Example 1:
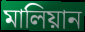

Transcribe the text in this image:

মালিয়ান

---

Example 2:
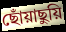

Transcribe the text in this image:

ছোঁয়াছুয়ি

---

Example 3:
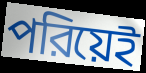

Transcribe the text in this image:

পরিয়েই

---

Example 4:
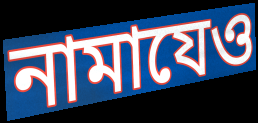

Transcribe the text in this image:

নামাযেও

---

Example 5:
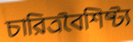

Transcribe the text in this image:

চারিত্রবৈশিষ্ট্য